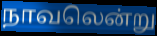
நாவலென்று